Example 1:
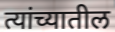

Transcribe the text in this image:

त्यांच्यातील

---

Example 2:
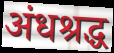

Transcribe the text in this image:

अंधश्रद्ध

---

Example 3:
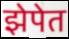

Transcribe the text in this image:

झेपेत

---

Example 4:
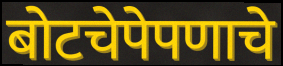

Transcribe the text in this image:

बोटचेपेपणाचे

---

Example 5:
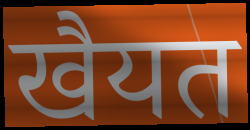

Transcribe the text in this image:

खैयत